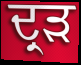
ਦ੍ਰੜ